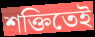
শক্তিতেই